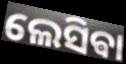
ଲେସିଵା